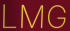
LMG